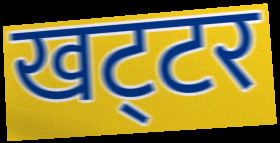
खट्‌टर